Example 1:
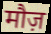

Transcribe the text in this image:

मौज़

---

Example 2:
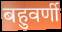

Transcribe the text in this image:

बहुवर्णी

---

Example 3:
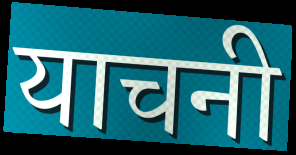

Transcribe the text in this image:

याचनी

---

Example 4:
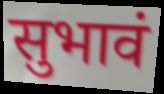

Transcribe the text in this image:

सुभावं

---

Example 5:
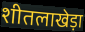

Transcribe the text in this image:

शीतलाखेड़ा